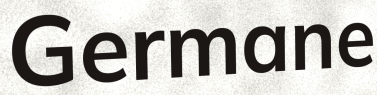
Germane